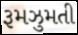
રૂમઝુમતી